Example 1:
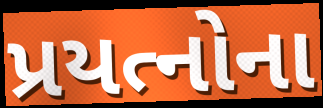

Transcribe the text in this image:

પ્રયત્નોના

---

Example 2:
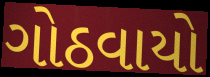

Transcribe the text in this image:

ગોઠવાયો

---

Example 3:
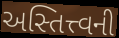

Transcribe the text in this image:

અસ્તિત્ત્વની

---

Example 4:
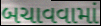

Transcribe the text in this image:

બચાવવામાં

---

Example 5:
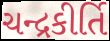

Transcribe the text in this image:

ચન્દ્રકીર્તિ